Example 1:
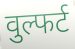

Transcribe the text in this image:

वुल्फर्ट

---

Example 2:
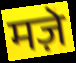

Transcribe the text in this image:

मज़े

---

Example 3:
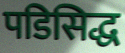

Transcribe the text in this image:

पडिसिद्ध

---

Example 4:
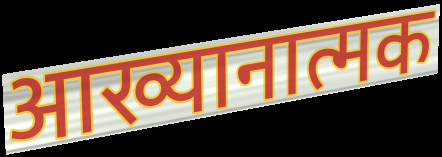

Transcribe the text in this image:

आख्यानात्मक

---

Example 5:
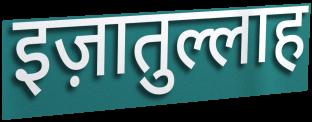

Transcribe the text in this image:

इज़ातुल्लाह